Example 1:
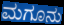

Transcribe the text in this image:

ಮಗೂನು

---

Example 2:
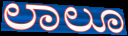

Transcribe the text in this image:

ಲಾಲೂ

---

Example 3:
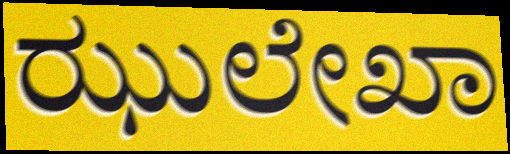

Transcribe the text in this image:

ಝುಲೇಖಾ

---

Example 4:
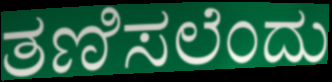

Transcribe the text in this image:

ತಣಿಸಲೆಂದು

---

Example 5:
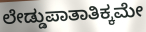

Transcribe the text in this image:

ಲೇಡ್ಡುಪಾತಾತಿಕ್ಕಮೇ